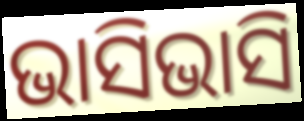
ଭାସିଭାସି